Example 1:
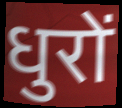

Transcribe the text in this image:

धुरों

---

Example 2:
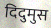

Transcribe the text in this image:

दिदुमुस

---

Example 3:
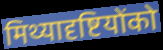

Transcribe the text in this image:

मिथ्यादृष्टियोंको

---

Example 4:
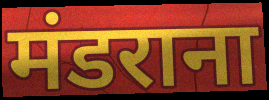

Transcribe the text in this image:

मंडराना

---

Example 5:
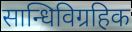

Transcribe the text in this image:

सान्धिविग्रहिक